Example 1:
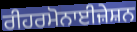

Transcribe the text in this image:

ਰੀਹਰਮੋਨਾਈਜ਼ੇਸ਼ਨ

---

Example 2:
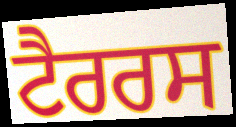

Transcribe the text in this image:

ਟੈਰਰਸ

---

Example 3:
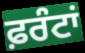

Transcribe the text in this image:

ਫ਼ਰੰਟਾਂ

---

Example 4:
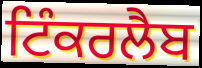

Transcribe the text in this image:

ਟਿੰਕਰਲੈਬ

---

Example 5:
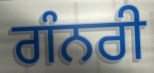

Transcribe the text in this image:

ਗੰਨਰੀ